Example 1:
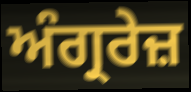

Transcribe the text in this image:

ਅੰਗ੍ਰਰੇਜ਼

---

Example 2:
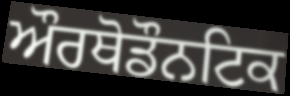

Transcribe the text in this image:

ਔਰਥੋਡੌਨਟਿਕ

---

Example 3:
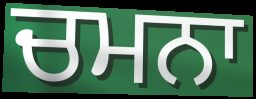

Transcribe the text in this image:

ਚਮਨਾ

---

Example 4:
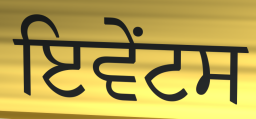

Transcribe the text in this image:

ਇਵੇੰਟਸ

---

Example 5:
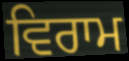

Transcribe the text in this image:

ਵਿਰਾਮ